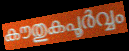
കൗതുകപൂർവ്വം